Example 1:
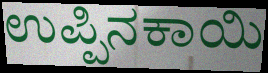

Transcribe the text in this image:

ಉಪ್ಪಿನಕಾಯಿ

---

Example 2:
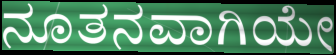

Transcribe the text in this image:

ನೂತನವಾಗಿಯೇ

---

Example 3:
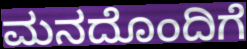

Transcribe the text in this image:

ಮನದೊಂದಿಗೆ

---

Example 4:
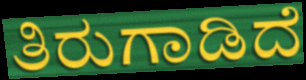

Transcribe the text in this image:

ತಿರುಗಾಡಿದೆ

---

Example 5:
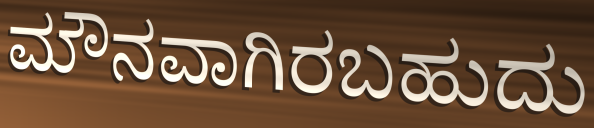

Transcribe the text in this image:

ಮೌನವಾಗಿರಬಹುದು